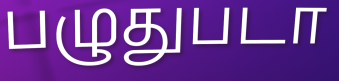
பழுதுபடா